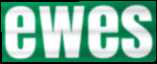
ewes